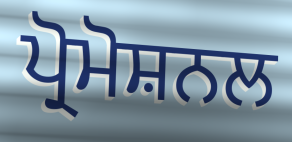
ਪ੍ਰੋਮੋਸ਼ਨਲ